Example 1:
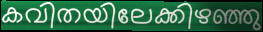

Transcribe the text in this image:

കവിതയിലേക്കിഴഞ്ഞു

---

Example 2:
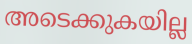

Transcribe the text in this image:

അടെക്കുകയില്ല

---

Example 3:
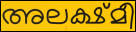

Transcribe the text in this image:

അലക്ഷ്മീ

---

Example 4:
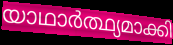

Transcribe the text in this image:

യാഥാർത്ഥ്യമാക്കി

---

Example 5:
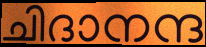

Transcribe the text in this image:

ചിദാനന്ദ